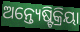
ଅନ୍ତ୍ୟେଷ୍ଟିକ୍ରିୟା